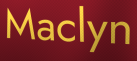
Maclyn